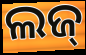
ଲଜ୍